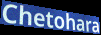
Chetohara